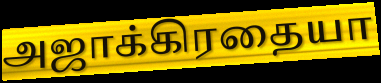
அஜாக்கிரதையா